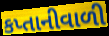
કપ્તાનીવાળી